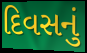
દિવસનું